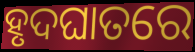
ହୃଦଘାତରେ